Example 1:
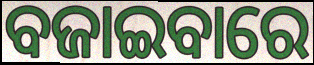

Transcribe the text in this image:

ବଜାଇବାରେ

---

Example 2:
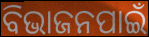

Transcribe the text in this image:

ବିଭାଜନପାଇଁ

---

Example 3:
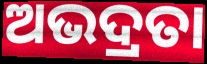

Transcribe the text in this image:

ଅଭଦ୍ରତା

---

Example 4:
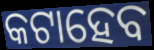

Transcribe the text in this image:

କଟାହେବ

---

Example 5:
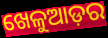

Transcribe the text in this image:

ଖେଳୁଆଡ଼ର